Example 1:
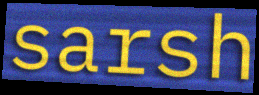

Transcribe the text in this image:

sarsh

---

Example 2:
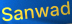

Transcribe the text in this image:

Sanwad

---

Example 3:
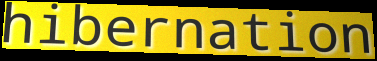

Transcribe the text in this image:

hibernation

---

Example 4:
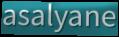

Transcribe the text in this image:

asalyane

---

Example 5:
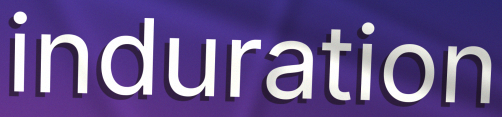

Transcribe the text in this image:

induration